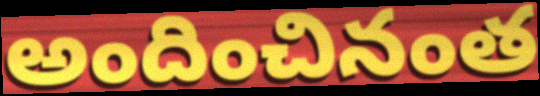
అందించినంత